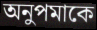
অনুপমাকে